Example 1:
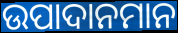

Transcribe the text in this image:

ଉପାଦାନମାନ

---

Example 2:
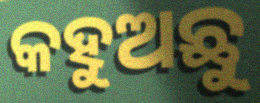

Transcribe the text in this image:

କହୁଅଛୁ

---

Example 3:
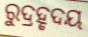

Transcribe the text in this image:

ରୁଦ୍ରହୃଦୟ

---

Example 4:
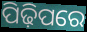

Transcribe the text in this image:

ପିଢ଼ିପରେ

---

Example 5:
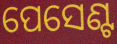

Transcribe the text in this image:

ପେସେଣ୍ଟ